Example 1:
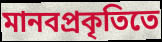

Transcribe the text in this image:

মানবপ্রকৃতিতে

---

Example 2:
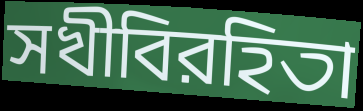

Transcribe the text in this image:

সখীবিরহিতা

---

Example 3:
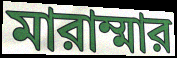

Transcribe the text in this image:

মারাম্মার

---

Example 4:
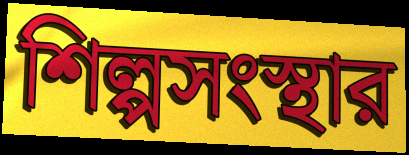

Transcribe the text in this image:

শিল্পসংস্থার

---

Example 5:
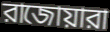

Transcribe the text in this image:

রাজোয়ারা